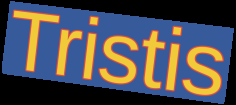
Tristis